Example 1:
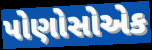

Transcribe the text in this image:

પોણોસોએક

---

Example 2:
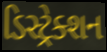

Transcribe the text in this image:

ડિસ્ટ્રેક્શન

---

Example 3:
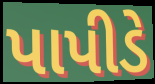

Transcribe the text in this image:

પાપીડે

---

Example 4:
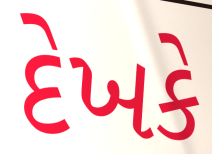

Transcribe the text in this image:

દેખકે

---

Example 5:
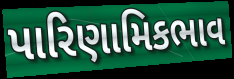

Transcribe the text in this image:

પારિણામિકભાવ